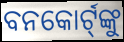
ବନକୋର୍ଟ୍‍ଙ୍କୁ